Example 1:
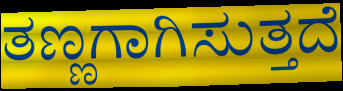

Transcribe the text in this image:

ತಣ್ಣಗಾಗಿಸುತ್ತದೆ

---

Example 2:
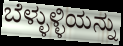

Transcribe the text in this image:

ಬೆಳ್ಳುಳ್ಳಿಯನ್ನು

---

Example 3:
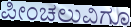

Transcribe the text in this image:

ಪೀಂಚಲುವಿಗೂ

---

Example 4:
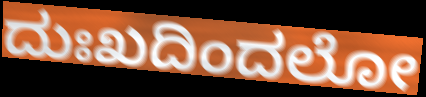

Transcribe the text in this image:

ದುಃಖದಿಂದಲೋ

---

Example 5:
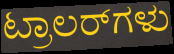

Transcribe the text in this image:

ಟ್ರಾಲರ್‌ಗಳು